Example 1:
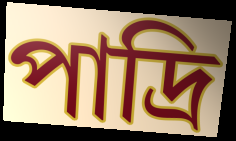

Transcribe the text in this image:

পাদ্রি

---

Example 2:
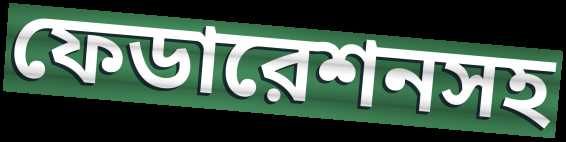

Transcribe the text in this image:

ফেডারেশনসহ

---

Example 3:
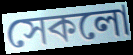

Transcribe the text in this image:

সেকলো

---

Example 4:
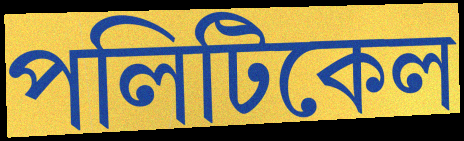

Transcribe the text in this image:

পলিটিকেল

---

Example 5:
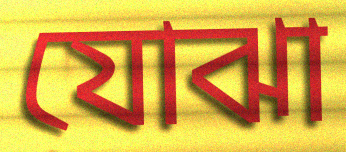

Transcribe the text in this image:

যোঝা